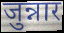
जुन्नार